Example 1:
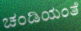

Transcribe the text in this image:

ಚಂಡಿಯಂತೆ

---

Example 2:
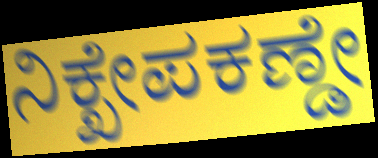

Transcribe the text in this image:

ನಿಕ್ಖೇಪಕಣ್ಡೇ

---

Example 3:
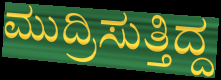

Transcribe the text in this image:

ಮುದ್ರಿಸುತ್ತಿದ್ದ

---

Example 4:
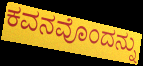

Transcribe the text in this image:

ಕವನವೊಂದನ್ನು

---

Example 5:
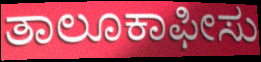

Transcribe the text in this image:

ತಾಲೂಕಾಫೀಸು